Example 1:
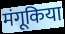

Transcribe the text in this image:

मंगूकिया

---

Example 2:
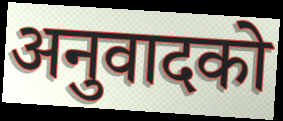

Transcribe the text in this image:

अनुवादको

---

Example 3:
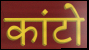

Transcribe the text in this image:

कांटो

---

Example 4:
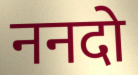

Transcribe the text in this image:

ननदो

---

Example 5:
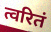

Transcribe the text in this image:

त्वरितं